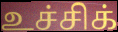
உச்சிக்